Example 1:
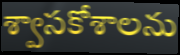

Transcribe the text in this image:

శ్వాసకోశాలను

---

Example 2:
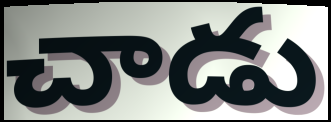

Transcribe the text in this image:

చాడు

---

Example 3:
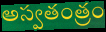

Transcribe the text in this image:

అస్వతంత్రం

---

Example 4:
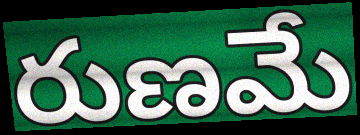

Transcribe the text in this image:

రుణమే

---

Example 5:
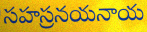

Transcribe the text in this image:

సహస్రనయనాయ